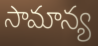
సామాన్య